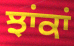
ਝਾਂਕਾਂ